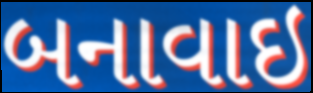
બનાવાઇ